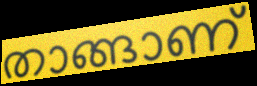
താങ്ങാണ്